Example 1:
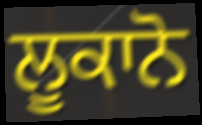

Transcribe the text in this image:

ਲੂਕਾਨੋ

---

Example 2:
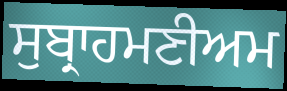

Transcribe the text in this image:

ਸੁਬ੍ਰਾਹਮਣੀਅਮ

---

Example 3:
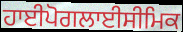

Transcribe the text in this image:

ਹਾਈਪੋਗਲਾਈਸੀਮਿਕ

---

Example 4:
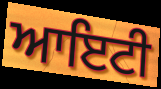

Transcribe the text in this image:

ਆਇਟੀ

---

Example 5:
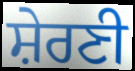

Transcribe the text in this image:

ਸ਼ੇਰਣੀ